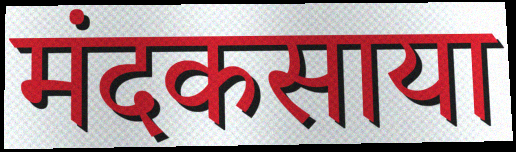
मंदकसाया